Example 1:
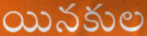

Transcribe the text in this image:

యినకుల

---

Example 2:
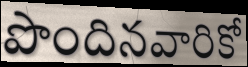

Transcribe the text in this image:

పొందినవారికో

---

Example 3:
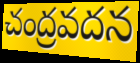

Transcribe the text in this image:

చంద్రవదన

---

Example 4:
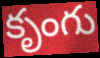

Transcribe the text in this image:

కృంగు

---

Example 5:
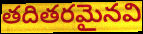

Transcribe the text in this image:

తదితరమైనవి